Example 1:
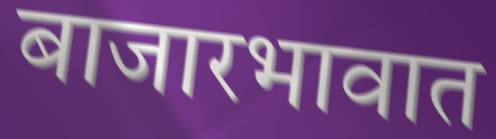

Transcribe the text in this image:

बाजारभावात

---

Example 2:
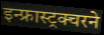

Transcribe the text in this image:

इन्फ्रास्ट्रक्चरने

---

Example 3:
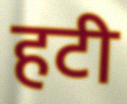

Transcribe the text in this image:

हटी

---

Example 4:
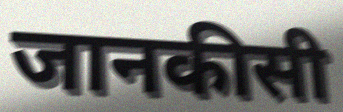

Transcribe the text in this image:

जानकीसी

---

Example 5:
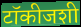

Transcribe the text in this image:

टॉकीजशी